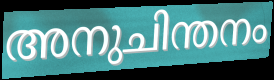
അനുചിന്തനം